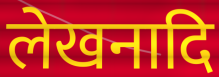
लेखनादि